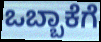
ಒಬ್ಬಾಕೆಗೆ